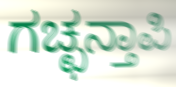
ಗಚ್ಛನ್ತಾಪಿ